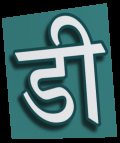
डी